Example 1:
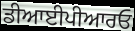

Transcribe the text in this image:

ਡੀਆਈਪੀਆਰਓ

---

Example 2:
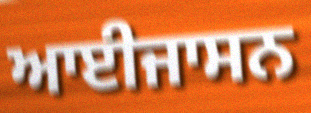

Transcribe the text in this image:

ਆਈਜਾਸਨ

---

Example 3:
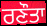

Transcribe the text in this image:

ਰਣੌਤਾ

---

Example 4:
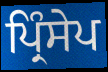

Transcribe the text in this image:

ਪ੍ਰਿੰਸੇਪ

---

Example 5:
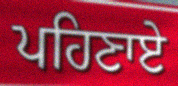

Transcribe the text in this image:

ਪਹਿਣਾਏ